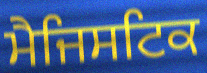
ਮੈਜਿਸਟਿਕ